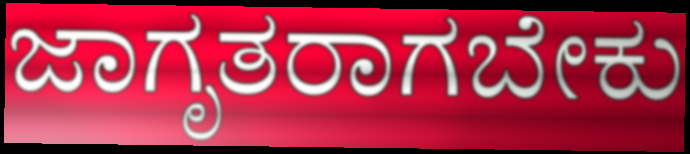
ಜಾಗೃತರಾಗಬೇಕು